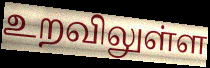
உறவிலுள்ள